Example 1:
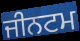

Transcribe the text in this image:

ਜੀਨਟਮ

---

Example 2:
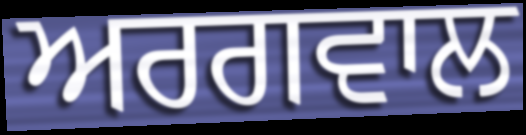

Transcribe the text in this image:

ਅਰਗਵਾਲ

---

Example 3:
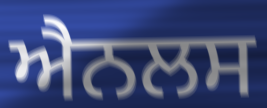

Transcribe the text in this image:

ਐਨਲਸ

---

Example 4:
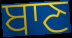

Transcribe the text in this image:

ਬਾਣ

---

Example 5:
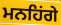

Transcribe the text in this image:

ਮਨਹਿਂਗੇ